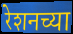
रेशनच्या